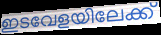
ഇടവേളയിലേക്ക്